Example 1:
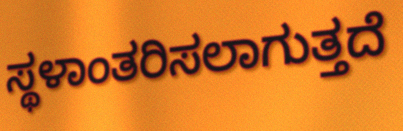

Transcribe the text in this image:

ಸ್ಥಳಾಂತರಿಸಲಾಗುತ್ತದೆ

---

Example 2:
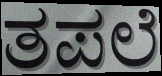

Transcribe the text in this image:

ತಪಲೆ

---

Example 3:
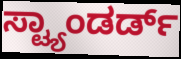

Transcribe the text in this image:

ಸ್ಟ್ಯಾಂಡರ್ಡ್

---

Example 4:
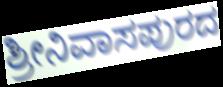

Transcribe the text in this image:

ಶ್ರೀನಿವಾಸಪುರದ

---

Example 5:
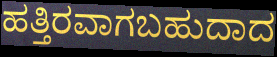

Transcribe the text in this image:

ಹತ್ತಿರವಾಗಬಹುದಾದ